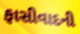
ફાસીવાદની